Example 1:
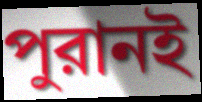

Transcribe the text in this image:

পুরানই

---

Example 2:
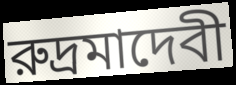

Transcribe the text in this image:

রুদ্রমাদেবী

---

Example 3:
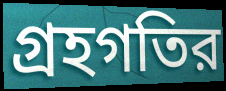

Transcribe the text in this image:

গ্রহগতির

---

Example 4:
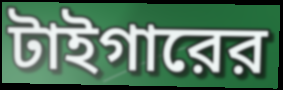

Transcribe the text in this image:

টাইগারের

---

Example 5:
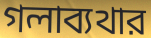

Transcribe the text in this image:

গলাব্যথার